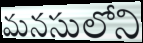
మనసులోని